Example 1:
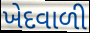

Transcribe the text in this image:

ખેદવાળી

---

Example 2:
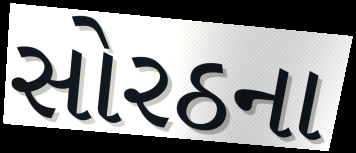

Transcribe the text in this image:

સોરઠના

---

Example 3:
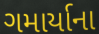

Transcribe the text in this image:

ગમાર્યાના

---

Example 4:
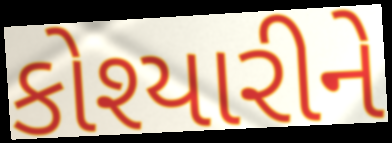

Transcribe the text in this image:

કોશ્યારીને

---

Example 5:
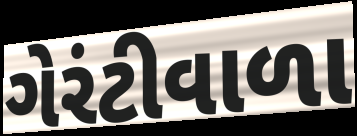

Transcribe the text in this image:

ગેરંટીવાળા